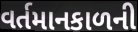
વર્તમાનકાળની